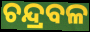
ଚନ୍ଦ୍ରବଳ